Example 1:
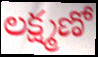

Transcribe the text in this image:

లక్ష్మణో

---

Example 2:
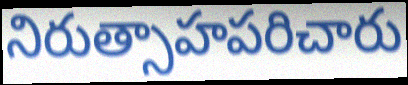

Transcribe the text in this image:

నిరుత్సాహపరిచారు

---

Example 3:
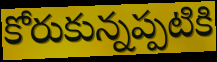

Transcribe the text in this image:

కోరుకున్నప్పటికి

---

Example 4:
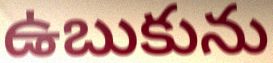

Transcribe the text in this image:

ఉబుకును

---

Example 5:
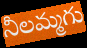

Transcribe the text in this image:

నీలమ్మగు